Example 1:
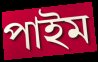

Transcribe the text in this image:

পাইম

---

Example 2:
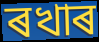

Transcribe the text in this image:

ৰখাৰ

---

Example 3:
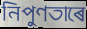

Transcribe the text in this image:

নিপুণতাৰে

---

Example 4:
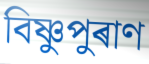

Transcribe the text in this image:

বিষ্ণুপুৰাণ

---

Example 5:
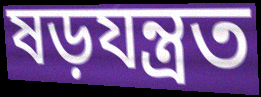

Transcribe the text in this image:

ষড়যন্ত্ৰত